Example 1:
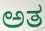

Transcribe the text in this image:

ಅತ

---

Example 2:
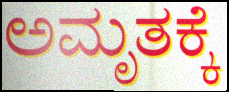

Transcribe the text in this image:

ಅಮೃತಕ್ಕೆ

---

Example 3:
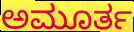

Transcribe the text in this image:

ಅಮೂರ್ತ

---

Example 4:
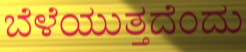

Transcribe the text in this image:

ಬೆಳೆಯುತ್ತದೆಂದು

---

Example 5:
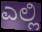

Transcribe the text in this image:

ಎಲ್ಲಿ